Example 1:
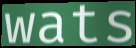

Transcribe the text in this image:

wats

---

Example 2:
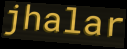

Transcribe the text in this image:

jhalar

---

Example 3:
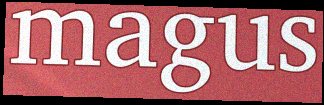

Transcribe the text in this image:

magus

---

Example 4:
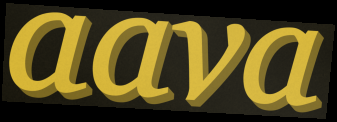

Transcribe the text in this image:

aava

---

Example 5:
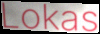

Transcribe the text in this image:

Lokas